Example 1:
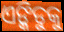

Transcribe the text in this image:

ଏଙ୍କିଡୁକୁ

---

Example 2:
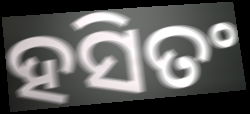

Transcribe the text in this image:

ହସିତଂ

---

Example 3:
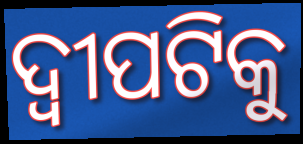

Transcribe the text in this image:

ଦ୍ୱୀପଟିକୁ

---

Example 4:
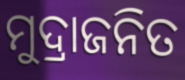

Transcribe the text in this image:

ମୁଦ୍ରାଜନିତ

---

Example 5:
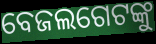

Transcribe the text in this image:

ବେଜଲଗେଟଙ୍କୁ